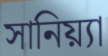
সানিয়্যা